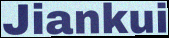
Jiankui